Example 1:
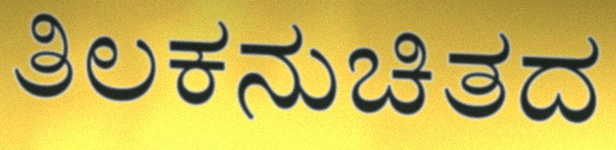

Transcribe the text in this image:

ತಿಲಕನುಚಿತದ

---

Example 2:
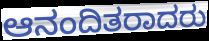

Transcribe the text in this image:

ಆನಂದಿತರಾದರು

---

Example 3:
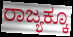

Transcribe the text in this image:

ರಾಜ್ಯಕ್ಕೂ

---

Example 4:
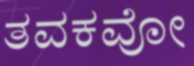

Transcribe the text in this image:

ತವಕವೋ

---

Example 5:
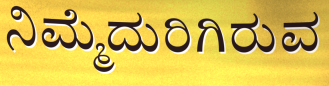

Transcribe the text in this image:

ನಿಮ್ಮೆದುರಿಗಿರುವ